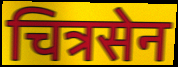
चित्रसेन